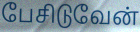
பேசிடுவேன்